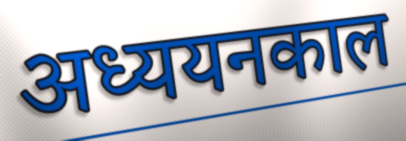
अध्ययनकाल